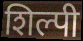
शिल्पी